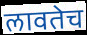
लावतेच